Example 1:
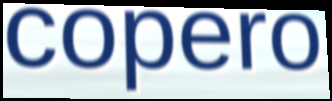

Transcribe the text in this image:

copero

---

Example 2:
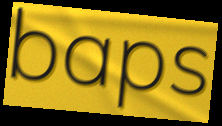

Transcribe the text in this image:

baps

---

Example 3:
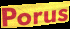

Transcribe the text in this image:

Porus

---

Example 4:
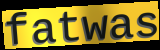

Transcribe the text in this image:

fatwas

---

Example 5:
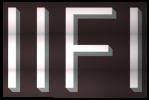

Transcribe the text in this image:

IIFI